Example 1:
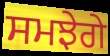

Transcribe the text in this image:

ਸਮਝੇਗੇ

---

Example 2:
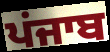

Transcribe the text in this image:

ਪਂਜਾਬ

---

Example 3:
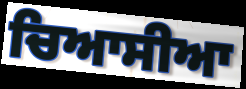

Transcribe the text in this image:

ਚਿਆਸੀਆ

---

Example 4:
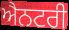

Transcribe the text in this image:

ਐਨਟਰੀ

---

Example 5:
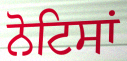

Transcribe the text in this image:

ਨੋਟਿਸਾਂ